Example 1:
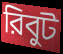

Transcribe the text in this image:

রিবুট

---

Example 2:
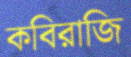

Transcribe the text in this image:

কবিরাজি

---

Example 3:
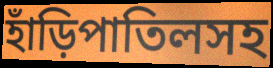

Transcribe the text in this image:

হাঁড়িপাতিলসহ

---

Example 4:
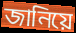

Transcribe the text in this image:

জানিয়ে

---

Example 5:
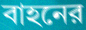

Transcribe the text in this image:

বাহনের